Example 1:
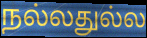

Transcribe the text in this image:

நல்லதுல்ல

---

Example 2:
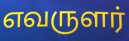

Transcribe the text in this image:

எவருளர்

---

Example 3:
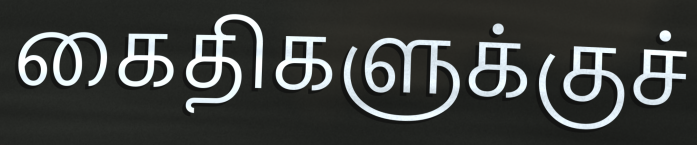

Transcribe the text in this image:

கைதிகளுக்குச்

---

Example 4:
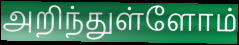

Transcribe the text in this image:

அறிந்துள்ளோம்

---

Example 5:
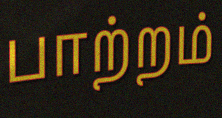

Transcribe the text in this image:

பாற்றம்